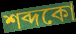
শব্দকো